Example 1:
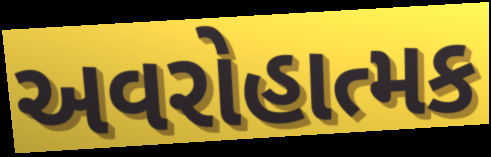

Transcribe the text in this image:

અવરોહાત્મક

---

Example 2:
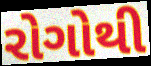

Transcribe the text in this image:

રોગોથી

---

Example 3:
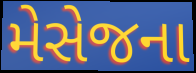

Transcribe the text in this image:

મેસેજના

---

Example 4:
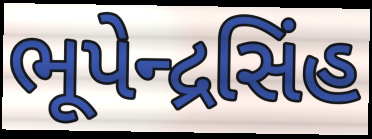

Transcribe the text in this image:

ભૂપેન્દ્રસિંહ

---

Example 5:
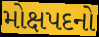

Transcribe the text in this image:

મોક્ષપદનો